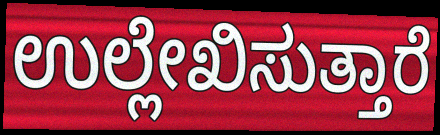
ಉಲ್ಲೇಖಿಸುತ್ತಾರೆ